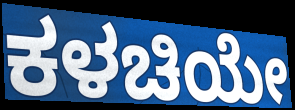
ಕಳಚಿಯೇ